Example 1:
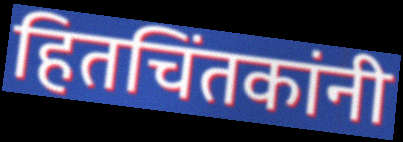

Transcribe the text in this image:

हितचिंतकांनी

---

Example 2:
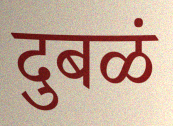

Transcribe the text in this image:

दुबळं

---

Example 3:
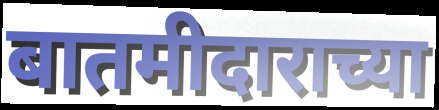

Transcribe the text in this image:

बातमीदाराच्या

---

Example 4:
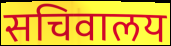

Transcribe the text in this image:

सचिवालय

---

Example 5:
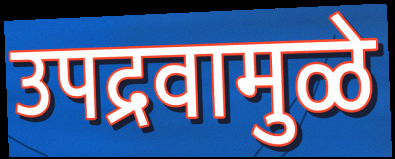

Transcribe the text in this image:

उपद्रवामुळे